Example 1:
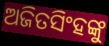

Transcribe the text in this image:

ଅଜିତସିଂହଙ୍କୁ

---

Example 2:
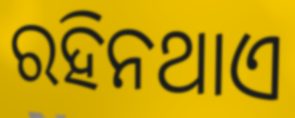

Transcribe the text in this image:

ରହିନଥାଏ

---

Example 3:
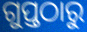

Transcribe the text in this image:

ଗୁପ୍ତଠାରୁ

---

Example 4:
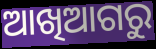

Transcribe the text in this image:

ଆଖିଆଗରୁ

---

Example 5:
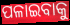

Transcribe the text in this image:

ପଳାଇବାକୁ